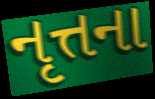
નૃત્તના